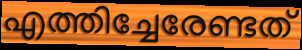
എത്തിച്ചേരേണ്ടത്